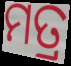
ମତ୍ର